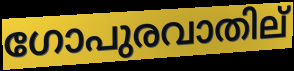
ഗോപുരവാതില്